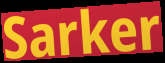
Sarker